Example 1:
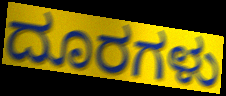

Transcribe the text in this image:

ದೂರಗಳು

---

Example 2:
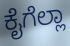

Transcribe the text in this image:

ಕೈಗೆಲ್ಲಾ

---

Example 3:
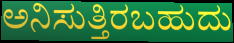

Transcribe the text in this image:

ಅನಿಸುತ್ತಿರಬಹುದು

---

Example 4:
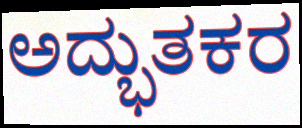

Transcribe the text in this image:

ಅದ್ಭುತಕರ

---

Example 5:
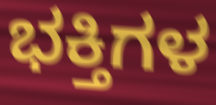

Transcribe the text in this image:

ಭಕ್ತಿಗಳ